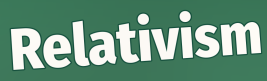
Relativism